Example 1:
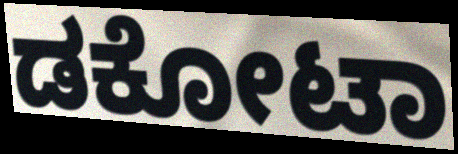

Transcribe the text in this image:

ಡಕೋಟಾ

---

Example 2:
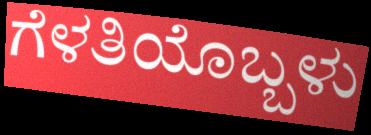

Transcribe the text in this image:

ಗೆಳತಿಯೊಬ್ಬಳು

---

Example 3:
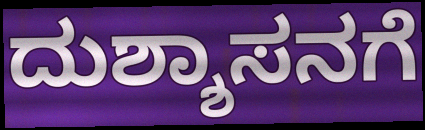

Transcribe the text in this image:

ದುಶ್ಶಾಸನಗೆ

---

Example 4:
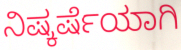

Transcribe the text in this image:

ನಿಷ್ಕರ್ಷೆಯಾಗಿ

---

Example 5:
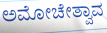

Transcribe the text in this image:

ಅಮೋಚೇತ್ವಾವ